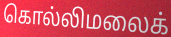
கொல்லிமலைக்